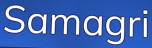
Samagri